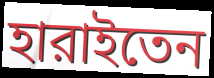
হারাইতেন